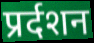
प्रर्दशन